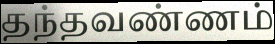
தந்தவண்ணம்